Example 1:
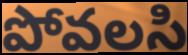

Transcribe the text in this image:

పోవలసి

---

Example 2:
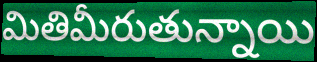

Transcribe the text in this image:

మితిమీరుతున్నాయి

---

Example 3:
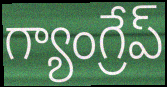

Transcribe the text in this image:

గ్యాంగ్రేప్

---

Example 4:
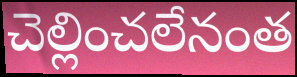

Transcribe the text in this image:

చెల్లించలేనంత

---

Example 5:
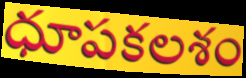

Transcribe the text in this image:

ధూపకలశం